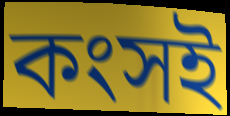
কংসই